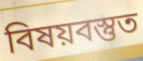
বিষয়বস্তুত